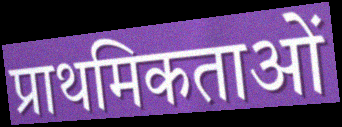
प्राथमिकताओं